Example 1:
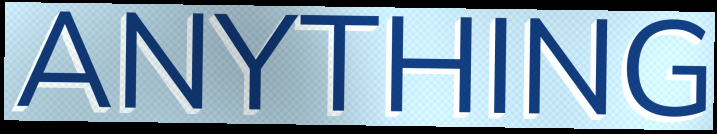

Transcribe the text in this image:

ANYTHING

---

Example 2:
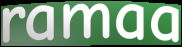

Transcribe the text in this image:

ramaa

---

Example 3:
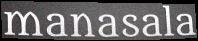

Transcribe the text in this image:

manasala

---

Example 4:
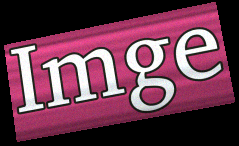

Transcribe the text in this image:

Imge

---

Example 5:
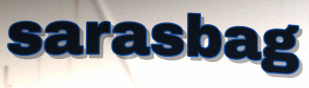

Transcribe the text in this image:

sarasbag